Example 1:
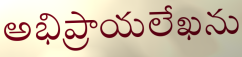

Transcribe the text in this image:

అభిప్రాయలేఖను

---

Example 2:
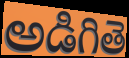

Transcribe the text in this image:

అడిగితె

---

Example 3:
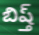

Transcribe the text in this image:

బిష్త్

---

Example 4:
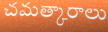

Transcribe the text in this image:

చమత్కారాలు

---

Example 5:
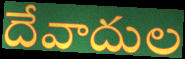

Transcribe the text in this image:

దేవాదుల